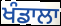
ਖੰਡਾਲਾ